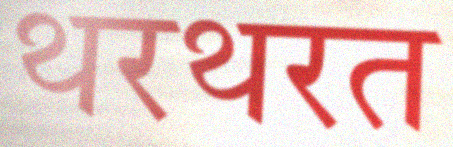
थरथरत